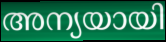
അന്യയായി